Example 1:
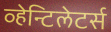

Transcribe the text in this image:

व्हेन्टिलेटर्स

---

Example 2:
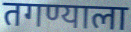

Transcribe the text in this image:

तगण्याला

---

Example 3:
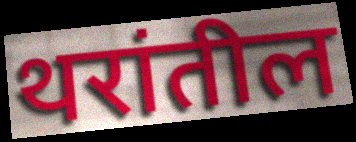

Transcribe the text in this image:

थरांतील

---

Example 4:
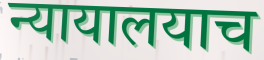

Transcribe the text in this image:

न्यायालयाच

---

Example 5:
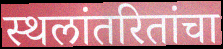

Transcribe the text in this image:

स्थलांतरितांचा